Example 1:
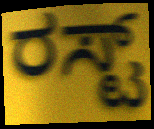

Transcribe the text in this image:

ರಸ್ಟ್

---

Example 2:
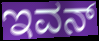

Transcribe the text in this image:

ಇವನ್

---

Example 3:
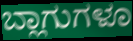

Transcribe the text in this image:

ಬ್ಲಾಗುಗಳೂ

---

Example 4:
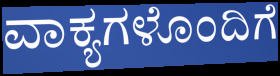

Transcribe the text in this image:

ವಾಕ್ಯಗಳೊಂದಿಗೆ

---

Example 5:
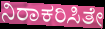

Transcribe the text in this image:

ನಿರಾಕರಿಸಿತೇ